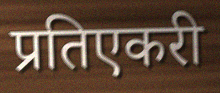
प्रतिएकरी